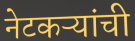
नेटकऱ्यांची